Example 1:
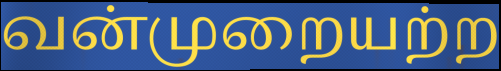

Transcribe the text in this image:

வன்முறையற்ற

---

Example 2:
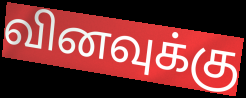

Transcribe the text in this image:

வினவுக்கு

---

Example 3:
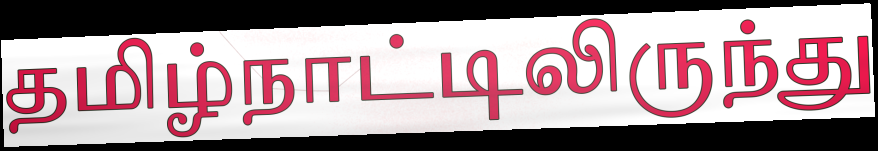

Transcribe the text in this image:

தமிழ்நாட்டிலிருந்து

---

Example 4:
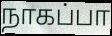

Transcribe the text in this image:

நாகப்பா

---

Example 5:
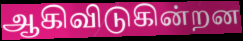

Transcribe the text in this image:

ஆகிவிடுகின்றன